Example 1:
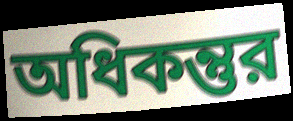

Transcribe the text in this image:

অধিকন্তুর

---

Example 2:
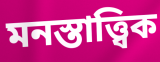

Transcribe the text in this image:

মনস্তাত্ত্বিক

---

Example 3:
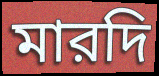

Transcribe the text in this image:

মারদি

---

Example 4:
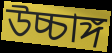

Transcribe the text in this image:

উচ্চাঙ্গ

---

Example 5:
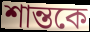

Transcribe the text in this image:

শান্তকে